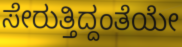
ಸೇರುತ್ತಿದ್ದಂತೆಯೇ